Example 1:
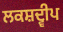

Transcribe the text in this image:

ਲਕਸ਼ਦ੍ਵੀਪ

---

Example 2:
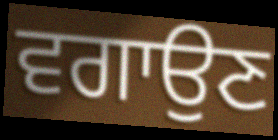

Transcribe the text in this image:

ਵਗਾਉਣ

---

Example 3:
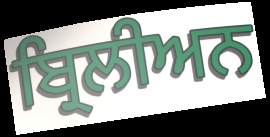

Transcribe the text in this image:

ਬ੍ਰਿਲੀਅਨ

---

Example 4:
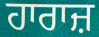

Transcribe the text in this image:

ਹਾਰਾਜ਼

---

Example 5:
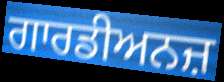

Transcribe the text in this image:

ਗਾਰਡੀਅਨਜ਼